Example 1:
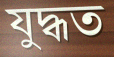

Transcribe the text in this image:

যুদ্ধত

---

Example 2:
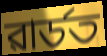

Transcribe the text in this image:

ৱাৰ্ডত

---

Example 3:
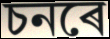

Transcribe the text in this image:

চনৰে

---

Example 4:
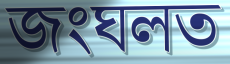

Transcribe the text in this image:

জংঘলত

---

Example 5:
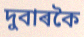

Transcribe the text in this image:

দুবাৰকৈ